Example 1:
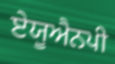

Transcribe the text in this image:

ਏਯੂਐਨਪੀ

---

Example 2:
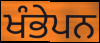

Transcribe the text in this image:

ਖੰਭੇਪਨ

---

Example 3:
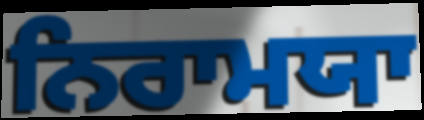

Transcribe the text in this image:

ਨਿਰਾਮਯਾ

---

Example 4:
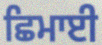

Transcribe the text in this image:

ਛਿਮਾਈ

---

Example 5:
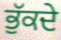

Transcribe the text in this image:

ਭੁੱਕਦੇ